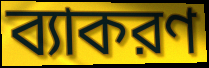
ব্যাকরণ